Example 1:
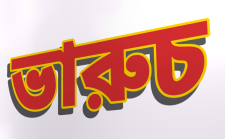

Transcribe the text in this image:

ভারুচ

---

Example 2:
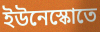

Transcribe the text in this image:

ইউনেস্কোতে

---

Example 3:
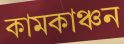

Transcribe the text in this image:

কামকাঞ্চন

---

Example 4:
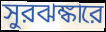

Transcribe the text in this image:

সুরঝঙ্কারে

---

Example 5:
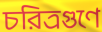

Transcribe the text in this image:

চরিত্রগুণে